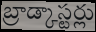
బ్రాడ్కాస్టర్లు